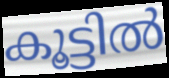
കൂട്ടിൽ